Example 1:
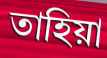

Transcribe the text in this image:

তাহিয়া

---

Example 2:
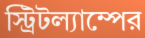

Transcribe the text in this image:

স্ট্রিটল্যাম্পের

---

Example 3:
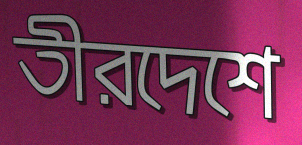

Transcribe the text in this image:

তীরদেশে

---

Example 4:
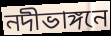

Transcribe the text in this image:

নদীভাঙ্গনে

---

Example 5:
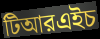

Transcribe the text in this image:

টিআরএইচ